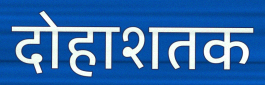
दोहाशतक